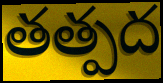
తత్పద